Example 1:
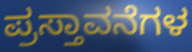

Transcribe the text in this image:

ಪ್ರಸ್ತಾವನೆಗಳ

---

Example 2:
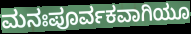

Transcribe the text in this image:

ಮನಃಪೂರ್ವಕವಾಗಿಯೂ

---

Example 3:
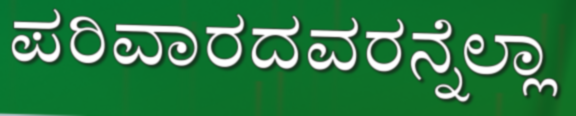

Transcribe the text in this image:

ಪರಿವಾರದವರನ್ನೆಲ್ಲಾ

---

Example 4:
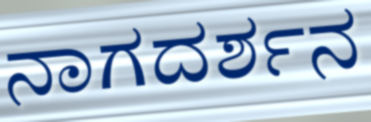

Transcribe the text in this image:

ನಾಗದರ್ಶನ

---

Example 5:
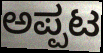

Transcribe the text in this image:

ಅಪ್ಪಟ